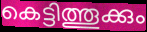
കെട്ടിത്തൂക്കും